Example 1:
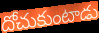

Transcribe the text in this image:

దోచుకుంటాడు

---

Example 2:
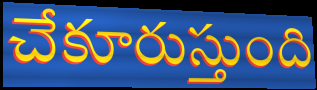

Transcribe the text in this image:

చేకూరుస్తుంది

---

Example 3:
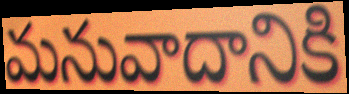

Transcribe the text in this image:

మనువాదానికి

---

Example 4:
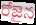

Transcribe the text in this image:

రోజైన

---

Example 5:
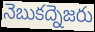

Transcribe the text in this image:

నెబుకద్నెజరు